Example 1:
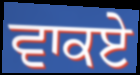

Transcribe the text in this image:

ਵਾਕਏ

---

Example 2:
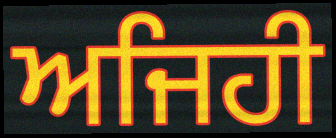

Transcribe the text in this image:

ਅਜਿਹੀ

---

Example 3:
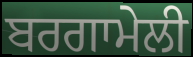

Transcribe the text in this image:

ਬਰਗਾਮੇਲੀ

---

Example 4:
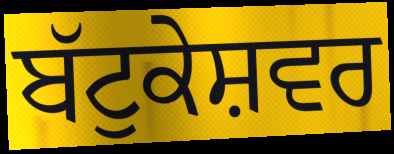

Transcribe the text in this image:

ਬੱਟੁਕੇਸ਼ਵਰ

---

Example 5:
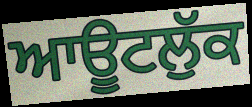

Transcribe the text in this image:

ਆਊਟਲੁੱਕ